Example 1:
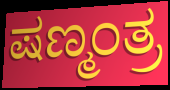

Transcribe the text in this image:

ಷಣ್ಮಂತ್ರ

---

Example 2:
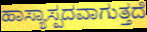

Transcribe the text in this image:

ಹಾಸ್ಯಾಸ್ಪದವಾಗುತ್ತದೆ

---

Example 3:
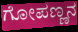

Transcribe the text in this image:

ಗೋಪಣ್ಣನ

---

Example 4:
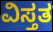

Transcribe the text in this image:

ವಿಸ್ತತ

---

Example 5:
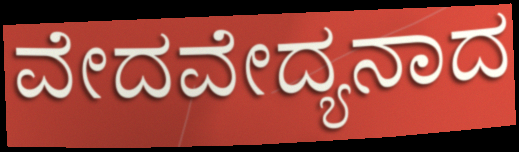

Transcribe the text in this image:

ವೇದವೇದ್ಯನಾದ